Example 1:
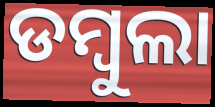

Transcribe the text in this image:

ଡମ୍ୱୁଲା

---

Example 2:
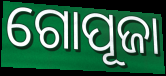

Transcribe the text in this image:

ଗୋପୂଜା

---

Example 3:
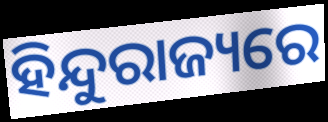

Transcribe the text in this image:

ହିନ୍ଦୁରାଜ୍ୟରେ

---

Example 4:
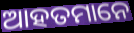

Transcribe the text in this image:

ଆହତମାନେ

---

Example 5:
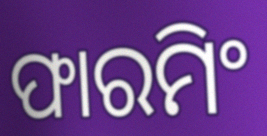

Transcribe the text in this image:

ଫାରମିଂ